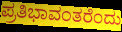
ಪ್ರತಿಭಾವಂತರೆಂದು